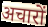
अचारों